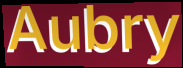
Aubry